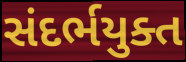
સંદર્ભયુક્ત